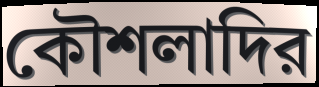
কৌশলাদির